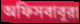
অফিসবাবুরা